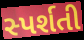
સ્પર્શતી